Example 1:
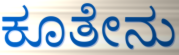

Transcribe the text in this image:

ಕೂತೇನು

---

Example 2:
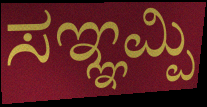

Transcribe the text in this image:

ಸಞ್ಞಮ್ಪಿ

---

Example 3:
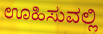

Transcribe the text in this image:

ಊಹಿಸುವಲ್ಲಿ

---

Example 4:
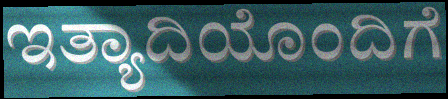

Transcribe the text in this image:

ಇತ್ಯಾದಿಯೊಂದಿಗೆ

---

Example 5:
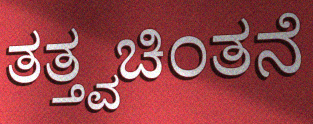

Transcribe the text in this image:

ತತ್ತ್ವಚಿಂತನೆ